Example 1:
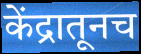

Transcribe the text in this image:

केंद्रातूनच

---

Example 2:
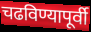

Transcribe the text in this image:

चढविण्यापूर्वी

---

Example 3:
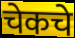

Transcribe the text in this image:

चेकचे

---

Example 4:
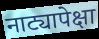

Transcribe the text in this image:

नाट्यापेक्षा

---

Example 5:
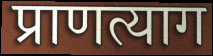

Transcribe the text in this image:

प्राणत्याग